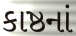
કાષ્ઠનાં